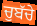
ਚੁਬੱਚੇ